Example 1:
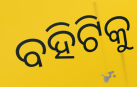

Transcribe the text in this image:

ବହିଟିକୁ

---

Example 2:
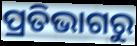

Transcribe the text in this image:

ପ୍ରତିଭାଗରୁ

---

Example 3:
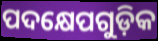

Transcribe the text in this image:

ପଦକ୍ଷେପଗୁଡ଼ିକ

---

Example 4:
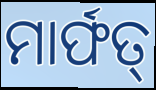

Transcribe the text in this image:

ମାର୍ଫତ୍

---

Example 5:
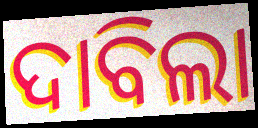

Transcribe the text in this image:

ଦାବିଲା